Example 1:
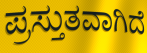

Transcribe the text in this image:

ಪ್ರಸ್ತುತವಾಗಿದೆ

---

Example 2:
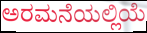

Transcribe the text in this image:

ಅರಮನೆಯಲ್ಲಿಯೆ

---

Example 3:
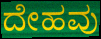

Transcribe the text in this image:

ದೇಹವು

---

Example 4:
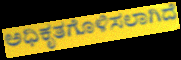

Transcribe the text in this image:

ಅಧಿಕೃತಗೊಳಿಸಲಾಗಿದೆ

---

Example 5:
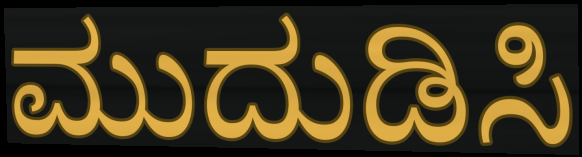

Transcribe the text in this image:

ಮುದುಡಿಸಿ